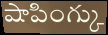
షాపింగ్కు